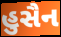
હુસૈન